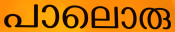
പാലൊരു